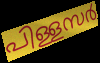
പിള്ളസർ